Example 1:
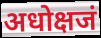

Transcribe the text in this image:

अधोक्षजं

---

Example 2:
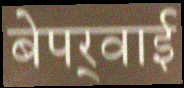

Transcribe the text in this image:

बेपर्वाई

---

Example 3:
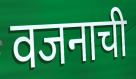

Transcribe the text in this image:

वजनाची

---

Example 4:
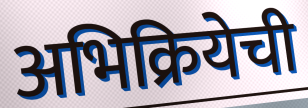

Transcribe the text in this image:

अभिक्रियेची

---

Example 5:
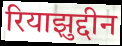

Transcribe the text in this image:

रियाझुद्दीन